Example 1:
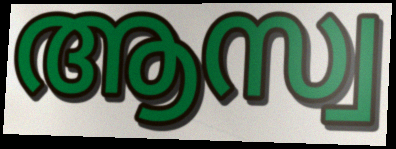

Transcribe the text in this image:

ആസ്വ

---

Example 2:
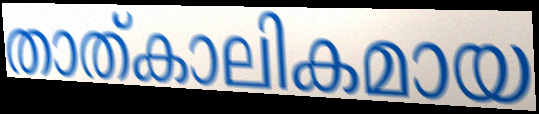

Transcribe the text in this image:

താത്കാലികമായ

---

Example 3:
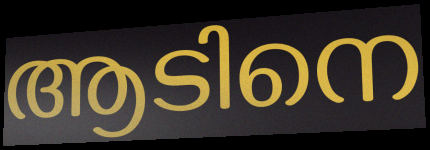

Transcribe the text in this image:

ആടിനെ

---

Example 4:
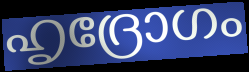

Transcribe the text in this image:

ഹൃദ്രോഗം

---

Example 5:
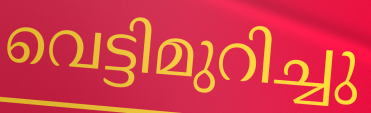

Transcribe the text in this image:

വെട്ടിമുറിച്ചു